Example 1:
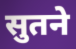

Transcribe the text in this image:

सुतने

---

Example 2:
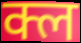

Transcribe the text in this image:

क्ल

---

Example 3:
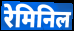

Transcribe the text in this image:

रेमिनिल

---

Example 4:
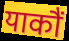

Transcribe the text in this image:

याकौं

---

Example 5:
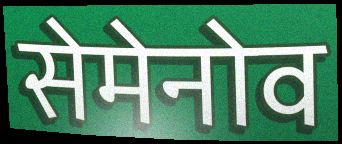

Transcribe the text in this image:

सेमेनोव